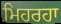
ਮਿਹਰਹਾ